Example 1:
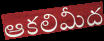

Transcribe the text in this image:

ఆకలిమీద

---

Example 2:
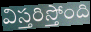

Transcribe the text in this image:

విస్తరిస్తోంది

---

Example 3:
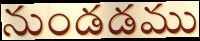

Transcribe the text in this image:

నుండడము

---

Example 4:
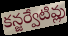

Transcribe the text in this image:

కన్జర్వేటివ్లు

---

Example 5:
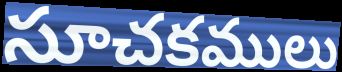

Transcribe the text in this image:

సూచకములు